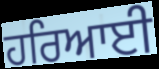
ਹਰਿਆਈ